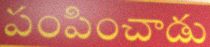
పంపించాడు